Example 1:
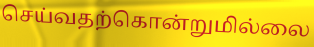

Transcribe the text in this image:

செய்வதற்கொன்றுமில்லை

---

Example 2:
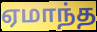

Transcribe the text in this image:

ஏமாந்த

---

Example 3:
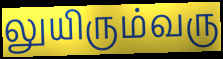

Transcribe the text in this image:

லுயிரும்வரு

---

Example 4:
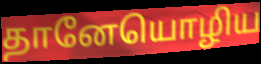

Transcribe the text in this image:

தானேயொழிய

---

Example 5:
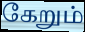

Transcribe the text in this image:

கேறும்